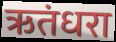
ऋतंधरा